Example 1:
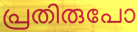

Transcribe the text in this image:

പ്രതിരുപോ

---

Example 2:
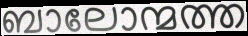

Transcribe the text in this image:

ബാലോന്മത്ത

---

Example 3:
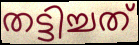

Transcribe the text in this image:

തട്ടിച്ചത്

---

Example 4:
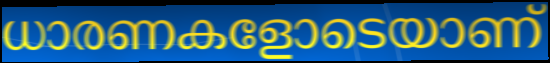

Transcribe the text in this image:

ധാരണകളോടെയാണ്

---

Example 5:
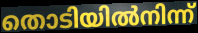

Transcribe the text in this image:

തൊടിയിൽനിന്ന്